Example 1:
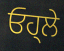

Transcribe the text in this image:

ਓਹ੍ਲੇ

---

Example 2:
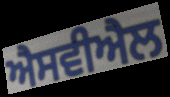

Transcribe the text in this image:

ਐਸਵੀਐਲ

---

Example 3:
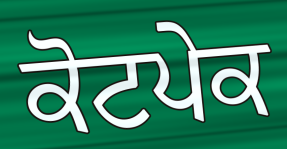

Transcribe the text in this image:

ਕੋਟਪੇਕ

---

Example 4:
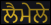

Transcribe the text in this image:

ਲੈਮੇਲੇ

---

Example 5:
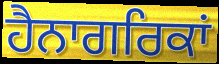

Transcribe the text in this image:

ਹੈਨਾਗਰਿਕਾਂ